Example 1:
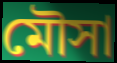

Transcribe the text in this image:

মৌসা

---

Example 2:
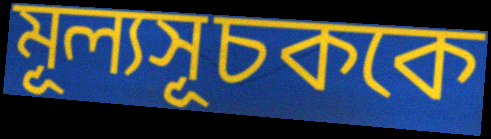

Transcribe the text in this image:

মূল্যসূচককে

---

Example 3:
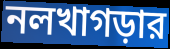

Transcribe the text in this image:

নলখাগড়ার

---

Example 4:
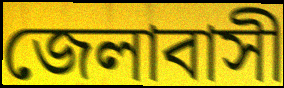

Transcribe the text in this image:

জেলাবাসী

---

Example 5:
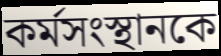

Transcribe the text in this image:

কর্মসংস্থানকে